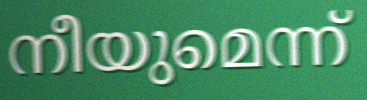
നീയുമെന്ന്